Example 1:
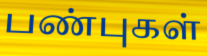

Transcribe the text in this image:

பண்புகள்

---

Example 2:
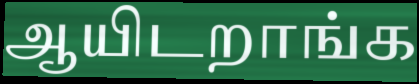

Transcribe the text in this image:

ஆயிடறாங்க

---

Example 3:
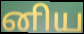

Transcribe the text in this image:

னிய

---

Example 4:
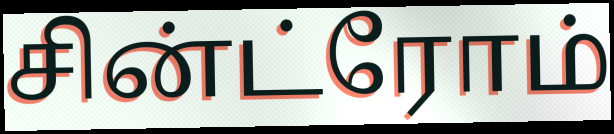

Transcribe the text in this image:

சின்ட்ரோம்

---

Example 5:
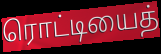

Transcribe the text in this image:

ரொட்டியைத்